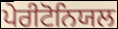
ਪੇਰੀਟੋਨਿਯਲ